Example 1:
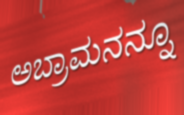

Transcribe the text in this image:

ಅಬ್ರಾಮನನ್ನೂ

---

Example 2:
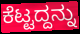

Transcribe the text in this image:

ಕೆಟ್ಟದ್ದನ್ನು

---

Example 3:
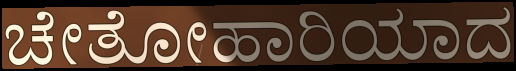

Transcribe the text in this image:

ಚೇತೋಹಾರಿಯಾದ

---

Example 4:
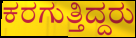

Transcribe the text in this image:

ಕರಗುತ್ತಿದ್ದರು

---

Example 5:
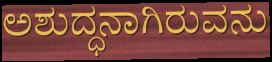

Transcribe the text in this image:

ಅಶುದ್ಧನಾಗಿರುವನು